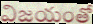
విజయంతో